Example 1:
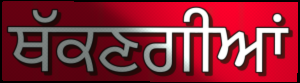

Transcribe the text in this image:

ਥੱਕਣਗੀਆਂ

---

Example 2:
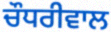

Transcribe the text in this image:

ਚੌਧਰੀਵਾਲ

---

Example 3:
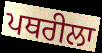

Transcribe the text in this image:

ਪਥਰੀਲਾ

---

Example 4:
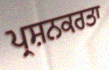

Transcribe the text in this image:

ਪ੍ਰਸ਼ਨਕਰਤਾ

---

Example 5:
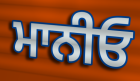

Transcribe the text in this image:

ਮਾਨੀਓ